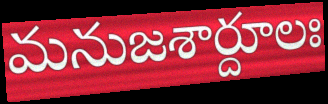
మనుజశార్దూలః